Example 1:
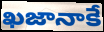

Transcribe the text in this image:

ఖజానాకే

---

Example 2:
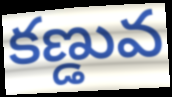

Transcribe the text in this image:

కణ్డువ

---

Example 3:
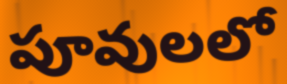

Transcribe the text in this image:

పూవులలో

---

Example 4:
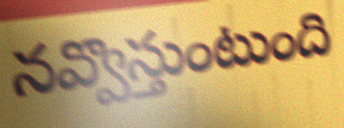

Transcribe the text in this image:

నవ్వొస్తుంటుంది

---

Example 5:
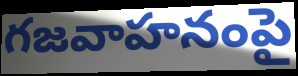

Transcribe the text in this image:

గజవాహనంపై